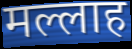
मल्‍लाह